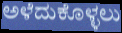
ಅಳೆದುಕೊಳ್ಳಲು